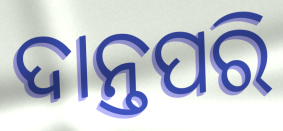
ଦାନ୍ତପରି